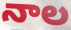
నాల